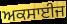
ਅਕਸਾਈਜ